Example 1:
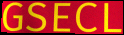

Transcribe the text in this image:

GSECL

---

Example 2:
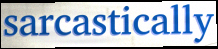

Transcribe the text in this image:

sarcastically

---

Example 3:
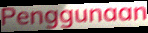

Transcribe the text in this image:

Penggunaan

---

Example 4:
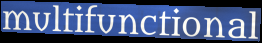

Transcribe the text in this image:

multifunctional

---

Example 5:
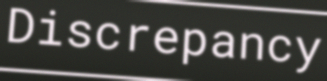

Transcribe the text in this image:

Discrepancy